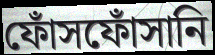
ফোঁসফোঁসানি